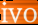
ivo